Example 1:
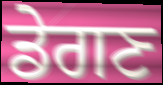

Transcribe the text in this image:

ਡੇਗਣ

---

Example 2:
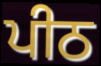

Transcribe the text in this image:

ਪੀਠ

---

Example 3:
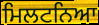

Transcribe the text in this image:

ਮਿਲਟਨਿਆ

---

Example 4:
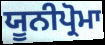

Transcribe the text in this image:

ਯੂਨੀਪ੍ਰੋਮਾ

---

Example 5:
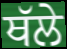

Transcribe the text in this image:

ਥੱਲੇ